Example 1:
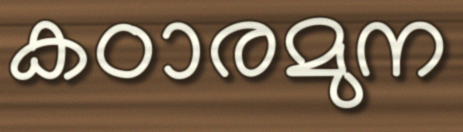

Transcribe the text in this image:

കഠാരമുന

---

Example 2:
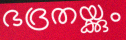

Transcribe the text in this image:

ഭദ്രതയ്ക്കും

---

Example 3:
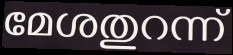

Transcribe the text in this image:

മേശതുറന്ന്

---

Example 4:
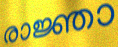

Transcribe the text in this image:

രാജ്ഞാ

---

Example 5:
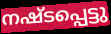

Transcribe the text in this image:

നഷ്ടപ്പെട്ടു